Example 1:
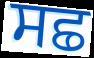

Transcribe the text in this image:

ਸਛ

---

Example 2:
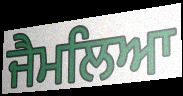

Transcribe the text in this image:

ਜੈਮਲਿਆ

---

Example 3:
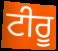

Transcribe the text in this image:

ਟੀਰੂ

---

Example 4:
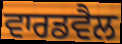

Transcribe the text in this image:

ਵਾਰਡਵੈਲ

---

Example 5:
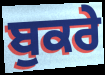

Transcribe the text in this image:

ਬੁਕਰੇ